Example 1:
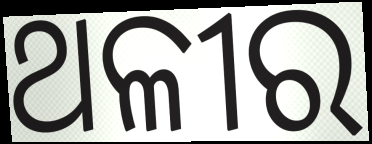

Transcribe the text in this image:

ଥଳୀର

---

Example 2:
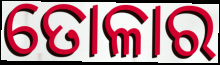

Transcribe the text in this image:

ତୋଳାର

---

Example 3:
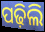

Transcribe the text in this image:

ପଢ଼ିଲି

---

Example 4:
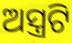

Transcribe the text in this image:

ଅସ୍ତ୍ରଟି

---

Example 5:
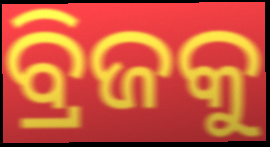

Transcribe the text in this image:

ବ୍ରିଜକୁ